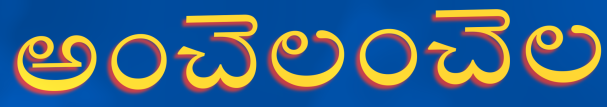
అంచెలంచెల